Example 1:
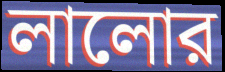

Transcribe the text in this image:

লালোর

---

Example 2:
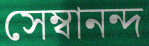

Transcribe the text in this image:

সেম্বানন্দ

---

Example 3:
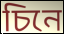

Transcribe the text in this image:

চিনে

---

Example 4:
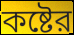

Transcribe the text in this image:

কষ্টের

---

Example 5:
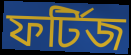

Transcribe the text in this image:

ফর্টিজ